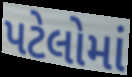
પટેલોમાં